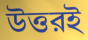
উত্তরই